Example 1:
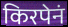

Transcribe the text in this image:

किरपेनं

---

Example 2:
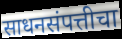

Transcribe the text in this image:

साधनसंपत्तीचा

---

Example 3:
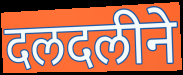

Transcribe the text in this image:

दलदलीने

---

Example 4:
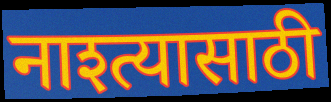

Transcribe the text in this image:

नाश्त्यासाठी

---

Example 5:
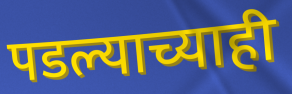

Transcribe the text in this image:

पडल्याच्याही